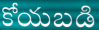
కోయబడి